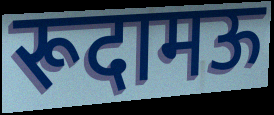
रूदामऊ